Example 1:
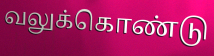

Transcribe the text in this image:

வலுக்கொண்டு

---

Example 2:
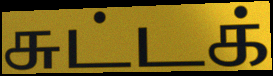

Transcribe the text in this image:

சுட்டக்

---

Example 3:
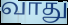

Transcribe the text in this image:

வாது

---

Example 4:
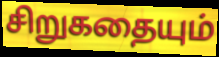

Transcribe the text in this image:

சிறுகதையும்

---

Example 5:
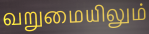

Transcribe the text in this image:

வறுமையிலும்